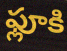
ఫ్లూకి